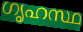
ഗൃഹസ്ഥ